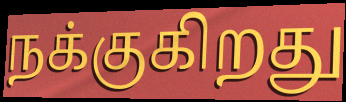
நக்குகிறது